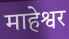
माहेश्वर